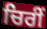
ਚਿਰੀਂ